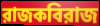
রাজকবিরাজ